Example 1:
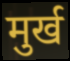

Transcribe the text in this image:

मुर्ख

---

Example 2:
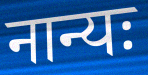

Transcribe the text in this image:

नान्यः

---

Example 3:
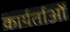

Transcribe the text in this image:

कार्यर्ताओं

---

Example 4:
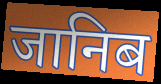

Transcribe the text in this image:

जानिब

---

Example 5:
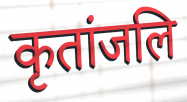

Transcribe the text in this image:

कृतांजलि